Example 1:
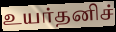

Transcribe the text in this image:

உயர்தனிச்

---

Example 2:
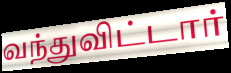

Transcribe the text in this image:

வந்துவிட்டார்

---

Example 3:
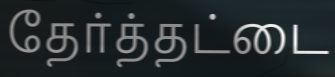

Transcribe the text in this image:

தேர்த்தட்டை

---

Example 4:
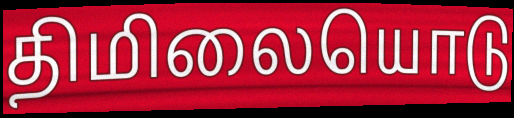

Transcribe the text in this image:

திமிலையொடு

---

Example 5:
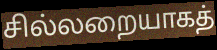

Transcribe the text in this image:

சில்லறையாகத்